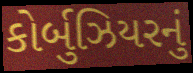
કોર્બુઝિયરનું